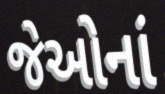
જેઓનાં